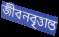
জীবনবৃত্তান্ত